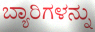
ಬ್ಯಾರಿಗಳನ್ನು